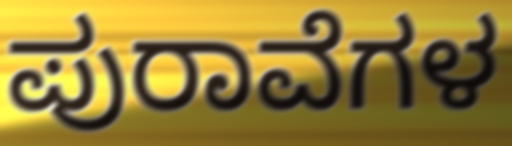
ಪುರಾವೆಗಳ